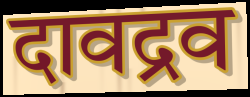
दावद्रव